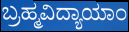
ಬ್ರಹ್ಮವಿದ್ಯಾಯಾಂ